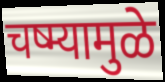
चष्म्यामुळे